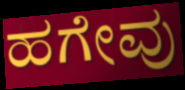
ಹಗೇವು